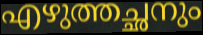
എഴുത്തച്ഛനും